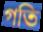
গতি